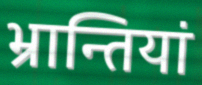
भ्रान्तियां